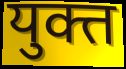
युक्त